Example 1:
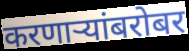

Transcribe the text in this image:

करणार्‍यांबरोबर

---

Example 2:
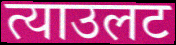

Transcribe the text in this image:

त्याउलट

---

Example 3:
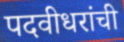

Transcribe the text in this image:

पदवीधरांची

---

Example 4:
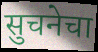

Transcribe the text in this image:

सुचनेचा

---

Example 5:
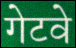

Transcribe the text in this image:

गेटवे